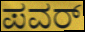
ಪವರ್